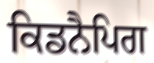
ਕਿਡਨੈਪਿਗ